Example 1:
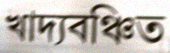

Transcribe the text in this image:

খাদ্যবঞ্চিত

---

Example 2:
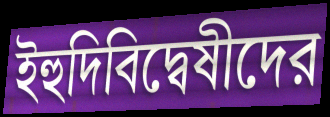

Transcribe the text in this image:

ইহুদিবিদ্বেষীদের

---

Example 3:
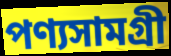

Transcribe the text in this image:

পণ্যসামগ্রী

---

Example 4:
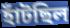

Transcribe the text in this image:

হাঁটছিল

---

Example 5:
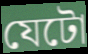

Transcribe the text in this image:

যেটো